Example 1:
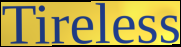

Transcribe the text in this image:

Tireless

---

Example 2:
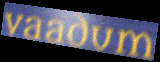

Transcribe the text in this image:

vaadum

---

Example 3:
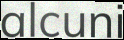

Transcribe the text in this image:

alcuni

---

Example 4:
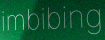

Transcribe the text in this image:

imbibing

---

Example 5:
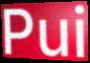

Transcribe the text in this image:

Pui